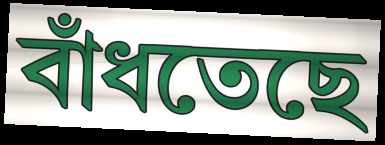
বাঁধতেছে